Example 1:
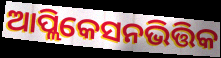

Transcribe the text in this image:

ଆପ୍ଲିକେସନଭିତ୍ତିକ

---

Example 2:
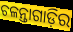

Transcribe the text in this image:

ଚଳନ୍ତାଗାଡ଼ିର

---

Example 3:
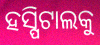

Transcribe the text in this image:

ହସ୍ପିଟାଲକୁ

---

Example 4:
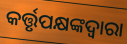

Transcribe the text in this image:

କର୍ତ୍ତୃପକ୍ଷଙ୍କଦ୍ଵାରା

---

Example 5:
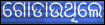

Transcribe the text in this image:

ଗୋଡାଉଥିଲେ